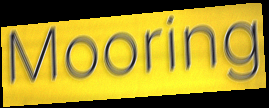
Mooring